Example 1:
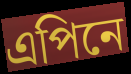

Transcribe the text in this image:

এপিনে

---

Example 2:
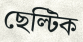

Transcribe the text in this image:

ছেল্টিক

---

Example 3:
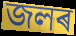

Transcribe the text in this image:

জলৰ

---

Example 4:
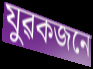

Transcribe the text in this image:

যুৱকজনে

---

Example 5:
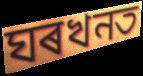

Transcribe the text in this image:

ঘৰখনত